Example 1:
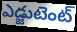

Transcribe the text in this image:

ఎడ్జుటెంట్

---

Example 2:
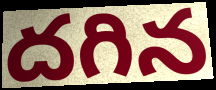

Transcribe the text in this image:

దగిన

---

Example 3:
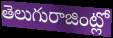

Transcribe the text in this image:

తెలుగురాజింట్లో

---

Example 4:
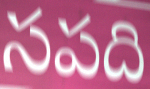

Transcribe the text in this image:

సపది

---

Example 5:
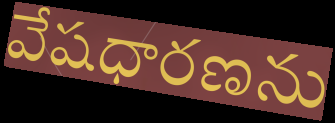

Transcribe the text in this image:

వేషధారణను